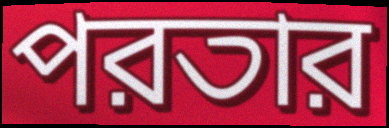
পরতার